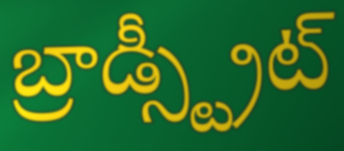
బ్రాడ్స్ట్రీట్